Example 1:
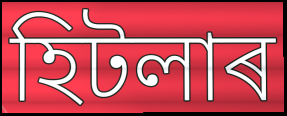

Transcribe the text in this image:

হিটলাৰ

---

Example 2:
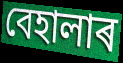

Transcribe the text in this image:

বেহালাৰ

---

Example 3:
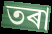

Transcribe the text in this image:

তৰা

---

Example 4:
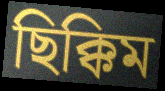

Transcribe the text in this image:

ছিক্কিম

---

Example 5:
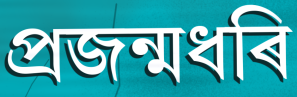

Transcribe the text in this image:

প্ৰজন্মধৰি